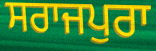
ਸਰਾਜਪੁਰਾ